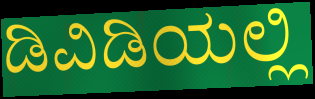
ಡಿವಿಡಿಯಲ್ಲಿ